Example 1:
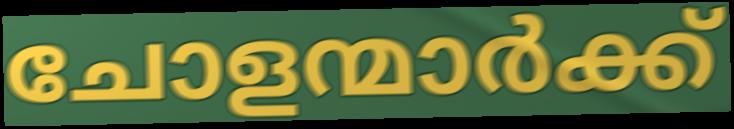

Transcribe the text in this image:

ചോളന്മാർക്ക്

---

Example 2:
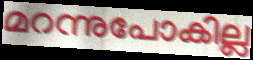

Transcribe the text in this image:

മറന്നുപോകില്ല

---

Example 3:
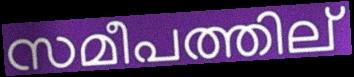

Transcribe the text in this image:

സമീപത്തില്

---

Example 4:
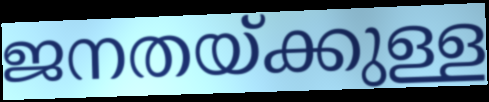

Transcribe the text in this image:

ജനതയ്ക്കുള്ള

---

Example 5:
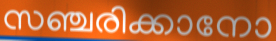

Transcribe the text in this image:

സഞ്ചരിക്കാനോ